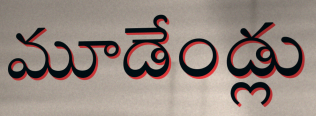
మూడేండ్లు